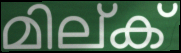
മില്ക്